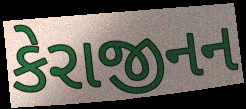
કેરાજીનન